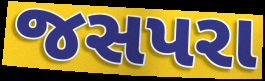
જસપરા